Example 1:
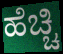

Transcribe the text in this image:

ಹೆಚ್ಚಿ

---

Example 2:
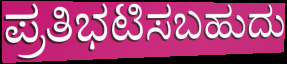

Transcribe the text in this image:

ಪ್ರತಿಭಟಿಸಬಹುದು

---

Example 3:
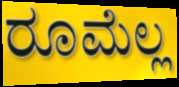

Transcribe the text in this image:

ರೂಮೆಲ್ಲ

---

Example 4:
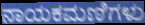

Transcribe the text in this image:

ನಾಯಕಮಣಿಗಳು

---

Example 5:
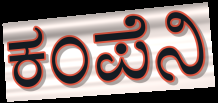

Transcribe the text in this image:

ಕಂಪೆನಿ